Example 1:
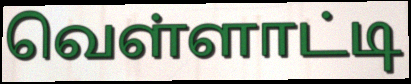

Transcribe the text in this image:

வெள்ளாட்டி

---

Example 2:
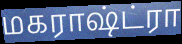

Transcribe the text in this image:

மகராஷ்ட்ரா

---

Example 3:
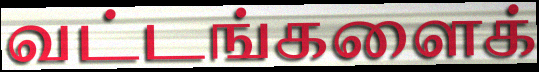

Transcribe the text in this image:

வட்டங்களைக்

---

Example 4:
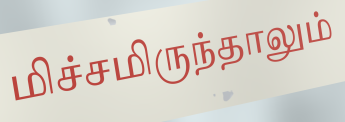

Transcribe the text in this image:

மிச்சமிருந்தாலும்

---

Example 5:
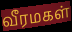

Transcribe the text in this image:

வீரமகள்